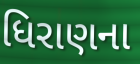
ધિરાણના